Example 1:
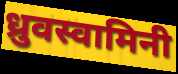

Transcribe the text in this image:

ध्रुवस्वामिनी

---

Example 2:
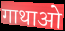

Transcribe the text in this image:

गाथाओ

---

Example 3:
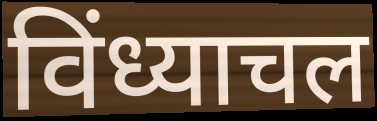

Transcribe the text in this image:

विंध्याचल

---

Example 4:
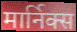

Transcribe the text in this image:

मार्निक्स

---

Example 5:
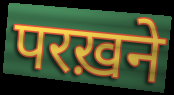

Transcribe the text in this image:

परख़ने